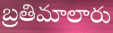
బ్రతిమాలారు